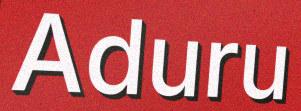
Aduru